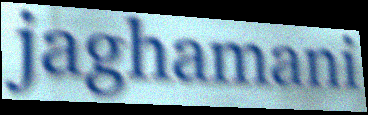
jaghamani